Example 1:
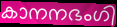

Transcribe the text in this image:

കാനനഭംഗി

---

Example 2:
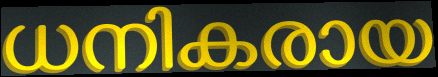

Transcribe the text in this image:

ധനികരായ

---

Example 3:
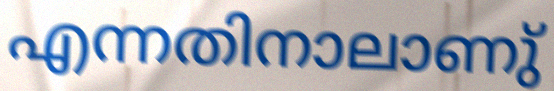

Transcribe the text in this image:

എന്നതിനാലാണു്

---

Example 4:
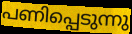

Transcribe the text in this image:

പണിപ്പെടുന്നു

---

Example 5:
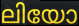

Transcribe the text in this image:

ലിയോ